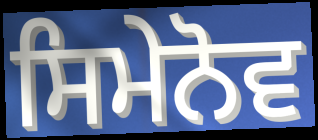
ਸਿਮੇਨੋਵ